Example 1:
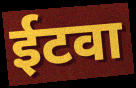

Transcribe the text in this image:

ईटवा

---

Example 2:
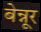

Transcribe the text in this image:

बेन्नूर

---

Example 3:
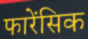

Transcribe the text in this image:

फारेंसिक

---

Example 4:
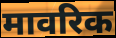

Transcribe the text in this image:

मावरिक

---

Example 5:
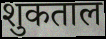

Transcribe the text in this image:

शुकताल